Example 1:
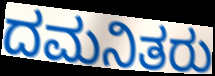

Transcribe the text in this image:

ದಮನಿತರು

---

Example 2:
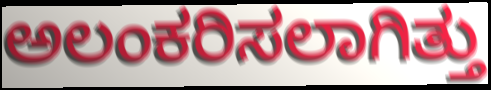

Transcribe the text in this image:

ಅಲಂಕರಿಸಲಾಗಿತ್ತು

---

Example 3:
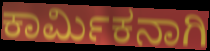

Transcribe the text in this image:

ಕಾರ್ಮಿಕನಾಗಿ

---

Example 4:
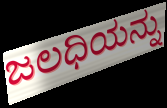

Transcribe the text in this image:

ಜಲಧಿಯನ್ನು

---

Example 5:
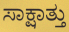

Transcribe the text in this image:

ಸಾಕ್ಷಾತ್ತು